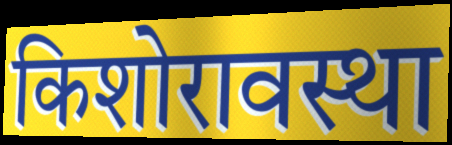
किशोरावस्था